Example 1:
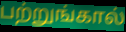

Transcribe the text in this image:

பற்றுங்கால்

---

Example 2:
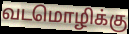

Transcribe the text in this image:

வடமொழிக்கு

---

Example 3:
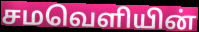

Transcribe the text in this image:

சமவெளியின்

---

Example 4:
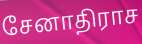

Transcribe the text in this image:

சேனாதிராச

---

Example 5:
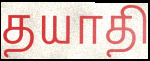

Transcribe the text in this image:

தயாதி